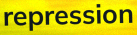
repression